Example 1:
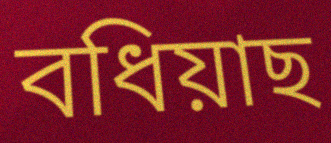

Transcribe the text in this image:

বধিয়াছ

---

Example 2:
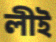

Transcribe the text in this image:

লীই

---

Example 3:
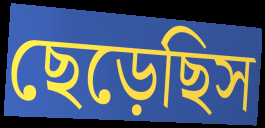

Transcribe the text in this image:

ছেড়েছিস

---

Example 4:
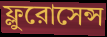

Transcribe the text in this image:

ফ্লুরোসেন্স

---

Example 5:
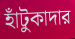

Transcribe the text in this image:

হাঁটুকাদার